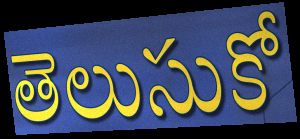
తెలుసుకో